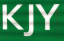
KJY